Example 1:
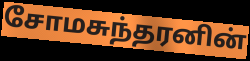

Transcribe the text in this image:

சோமசுந்தரனின்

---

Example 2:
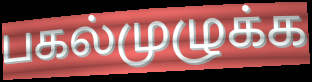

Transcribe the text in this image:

பகல்முழுக்க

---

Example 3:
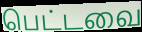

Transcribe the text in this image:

பெட்டவை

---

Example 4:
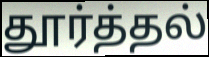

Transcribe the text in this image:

தூர்த்தல்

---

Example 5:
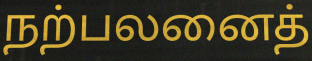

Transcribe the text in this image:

நற்பலனைத்